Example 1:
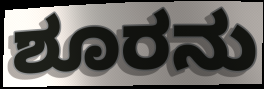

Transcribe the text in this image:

ಶೂರನು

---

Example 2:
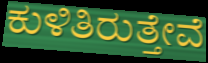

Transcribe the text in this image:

ಕುಳಿತಿರುತ್ತೇವೆ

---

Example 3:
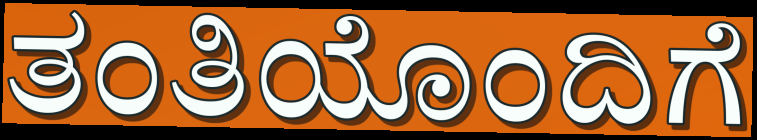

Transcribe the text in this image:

ತಂತಿಯೊಂದಿಗೆ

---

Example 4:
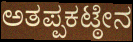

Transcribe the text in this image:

ಅತಪ್ಪಕಟ್ಠೇನ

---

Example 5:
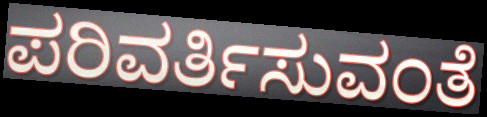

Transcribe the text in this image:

ಪರಿವರ್ತಿಸುವಂತೆ